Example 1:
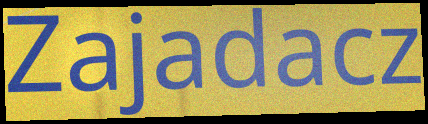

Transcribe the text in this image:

Zajadacz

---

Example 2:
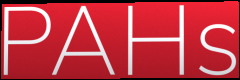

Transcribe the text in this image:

PAHs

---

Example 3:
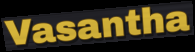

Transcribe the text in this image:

Vasantha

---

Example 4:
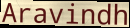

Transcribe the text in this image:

Aravindh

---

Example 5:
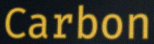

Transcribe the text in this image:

Carbon